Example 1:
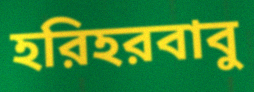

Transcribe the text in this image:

হরিহরবাবু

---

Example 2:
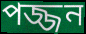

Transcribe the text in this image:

পজ্জন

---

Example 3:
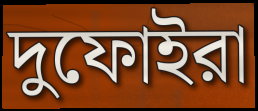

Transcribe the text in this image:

দুফোইরা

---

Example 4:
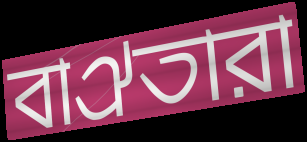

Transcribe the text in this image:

বাঐতারা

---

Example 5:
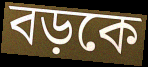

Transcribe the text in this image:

বড়কে